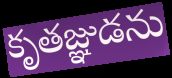
కృతజ్ఞుడను